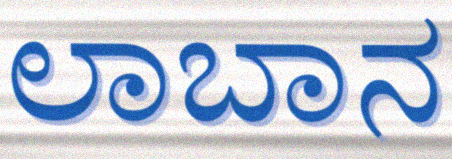
ಲಾಬಾನ